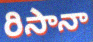
రిసానా